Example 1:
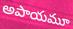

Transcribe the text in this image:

అపాయమూ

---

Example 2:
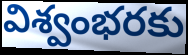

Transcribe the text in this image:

విశ్వంభరకు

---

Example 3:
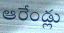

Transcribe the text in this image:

ఆరేండ్లు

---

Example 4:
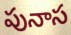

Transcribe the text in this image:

పునాస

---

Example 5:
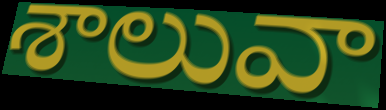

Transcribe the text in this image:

శాలువా